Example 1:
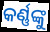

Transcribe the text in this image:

କର୍ଣ୍ଣଙ୍କୁ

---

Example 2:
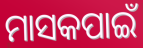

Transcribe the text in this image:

ମାସକପାଇଁ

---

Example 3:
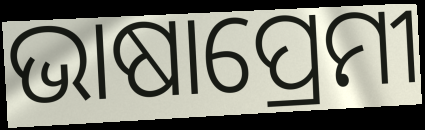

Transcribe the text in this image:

ଭାଷାପ୍ରେମୀ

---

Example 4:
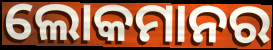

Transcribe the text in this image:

ଲୋକମାନର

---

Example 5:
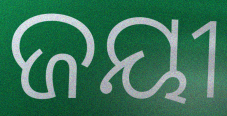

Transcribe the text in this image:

ଜୟୀ